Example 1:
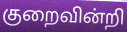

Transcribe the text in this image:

குறைவின்றி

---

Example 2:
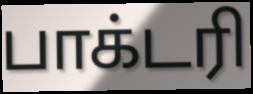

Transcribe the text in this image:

பாக்டரி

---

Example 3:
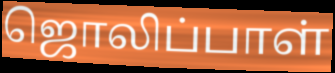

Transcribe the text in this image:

ஜொலிப்பாள்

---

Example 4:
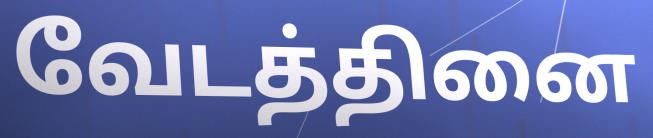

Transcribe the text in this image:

வேடத்தினை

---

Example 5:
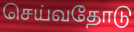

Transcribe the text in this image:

செய்வதோடு